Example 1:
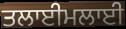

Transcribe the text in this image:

ਤਲਾਈਮਲਾਈ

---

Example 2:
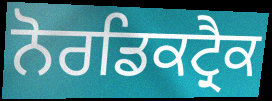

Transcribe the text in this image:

ਨੋਰਡਿਕਟ੍ਰੈਕ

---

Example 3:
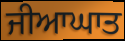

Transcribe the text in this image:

ਜੀਆਘਾਤ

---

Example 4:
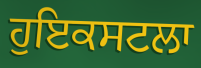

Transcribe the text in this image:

ਹੁਇਕਸਟਲਾ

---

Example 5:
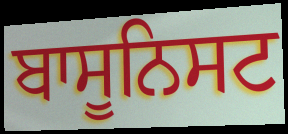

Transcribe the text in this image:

ਬਾਸੂਨਿਸਟ